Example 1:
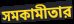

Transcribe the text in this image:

সমকামীতার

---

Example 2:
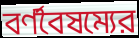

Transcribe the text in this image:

বর্ণবৈষম্যের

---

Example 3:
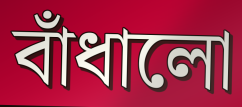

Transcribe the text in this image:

বাঁধালো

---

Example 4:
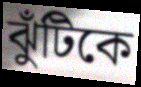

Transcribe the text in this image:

ঝুঁটিকে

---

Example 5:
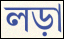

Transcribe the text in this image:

লড়া